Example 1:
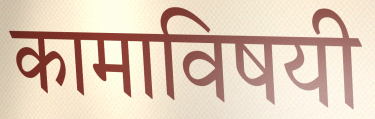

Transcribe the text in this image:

कामाविषयी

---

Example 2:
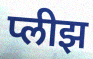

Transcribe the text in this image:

प्लीझ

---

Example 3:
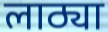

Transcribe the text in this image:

लाठ्या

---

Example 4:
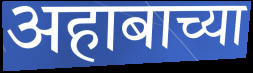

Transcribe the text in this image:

अहाबाच्या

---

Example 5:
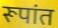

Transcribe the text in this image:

रूपांत